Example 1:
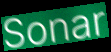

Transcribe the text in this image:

Sonar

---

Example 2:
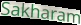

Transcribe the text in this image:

Sakharam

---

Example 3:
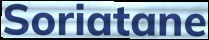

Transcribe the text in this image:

Soriatane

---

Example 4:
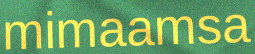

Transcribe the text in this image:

mimaamsa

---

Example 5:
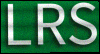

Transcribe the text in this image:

LRS